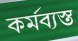
কর্মব্যস্ত